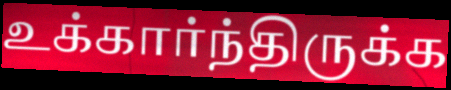
உக்கார்ந்திருக்க